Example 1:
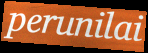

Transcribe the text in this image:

perunilai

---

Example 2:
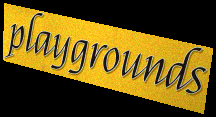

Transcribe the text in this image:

playgrounds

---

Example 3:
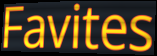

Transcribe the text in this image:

Favites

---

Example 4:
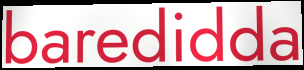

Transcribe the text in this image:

baredidda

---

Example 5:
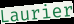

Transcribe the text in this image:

Laurier